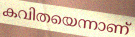
കവിതയെന്നാണ്